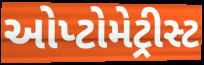
ઓપ્ટોમેટ્રીસ્ટ